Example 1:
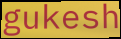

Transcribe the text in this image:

gukesh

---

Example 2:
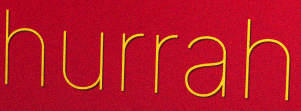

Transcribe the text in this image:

hurrah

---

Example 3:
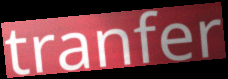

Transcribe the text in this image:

tranfer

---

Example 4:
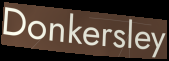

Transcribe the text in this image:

Donkersley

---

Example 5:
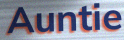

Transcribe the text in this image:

Auntie